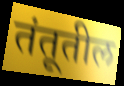
तंतूतील